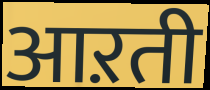
आऱती